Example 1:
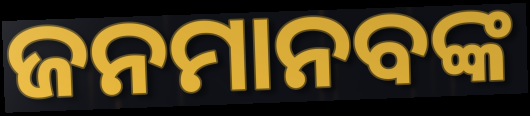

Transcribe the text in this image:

ଜନମାନବଙ୍କ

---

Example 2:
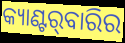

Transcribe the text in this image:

କ୍ୟାଣ୍ଟର୍‌ବାରିର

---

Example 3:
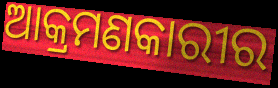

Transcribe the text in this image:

ଆକ୍ରମଣକାରୀର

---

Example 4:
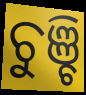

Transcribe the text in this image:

ଚୁଞ୍ଚି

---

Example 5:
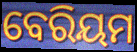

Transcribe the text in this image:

ବେରିୟମ